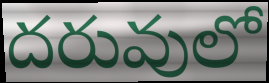
దరువులో